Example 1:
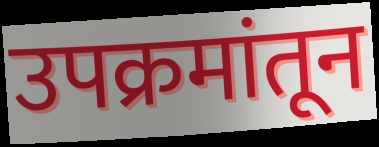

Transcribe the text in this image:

उपक्रमांतून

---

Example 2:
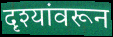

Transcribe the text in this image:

दृश्यांवरून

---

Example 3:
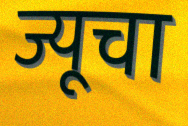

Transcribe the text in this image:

ज्यूचा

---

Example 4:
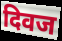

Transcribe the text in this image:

दिवज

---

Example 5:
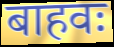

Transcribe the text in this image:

बाहवः